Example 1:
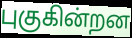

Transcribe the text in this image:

புகுகின்றன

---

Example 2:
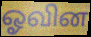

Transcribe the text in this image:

ஓவின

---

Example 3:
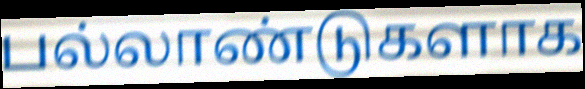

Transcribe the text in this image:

பல்லாண்டுகளாக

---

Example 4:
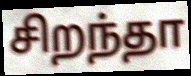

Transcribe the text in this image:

சிறந்தா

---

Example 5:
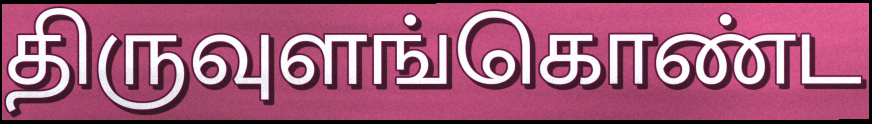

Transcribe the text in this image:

திருவுளங்கொண்ட